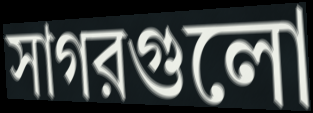
সাগরগুলো